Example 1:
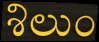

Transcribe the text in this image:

శిలుం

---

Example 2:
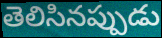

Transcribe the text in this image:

తెలిసినప్పుడు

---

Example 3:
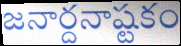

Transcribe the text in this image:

జనార్దనాష్టకం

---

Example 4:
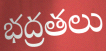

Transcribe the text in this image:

భద్రతలు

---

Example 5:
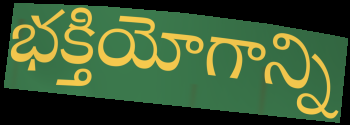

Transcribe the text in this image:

భక్తియోగాన్ని